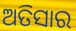
ଅତିସାର